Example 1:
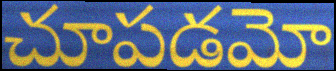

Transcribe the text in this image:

చూపడమో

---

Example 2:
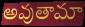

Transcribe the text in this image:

అవుతామా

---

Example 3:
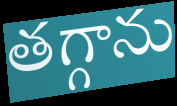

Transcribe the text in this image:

తగ్గాను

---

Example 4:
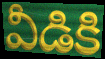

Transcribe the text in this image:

వీడికి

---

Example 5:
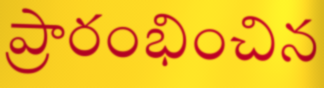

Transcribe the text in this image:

ప్రారంభించిన